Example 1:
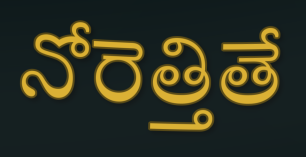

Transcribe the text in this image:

నోరెత్తితే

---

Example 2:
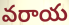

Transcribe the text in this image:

వరాయ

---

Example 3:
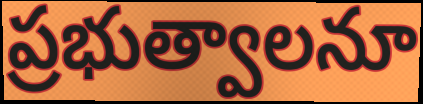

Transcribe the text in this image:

ప్రభుత్వాలనూ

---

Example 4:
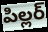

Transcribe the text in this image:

పిల్లర్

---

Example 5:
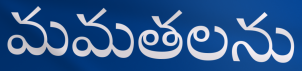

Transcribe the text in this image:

మమతలను